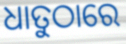
ଧାତୁଠାରେ